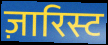
ज़ारिस्ट